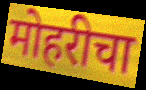
मोहरीचा